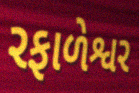
રફાળેશ્વર